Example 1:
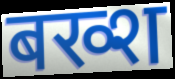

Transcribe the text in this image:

बख्श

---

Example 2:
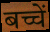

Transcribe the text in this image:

बच्चें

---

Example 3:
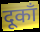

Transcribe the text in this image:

दूकाँ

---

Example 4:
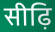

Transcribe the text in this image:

सीढ़ि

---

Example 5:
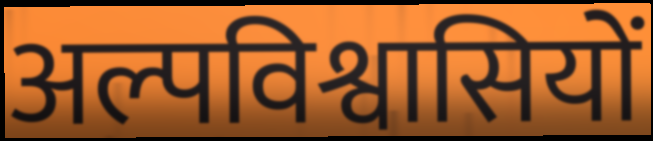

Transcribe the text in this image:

अल्पविश्वासियों